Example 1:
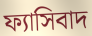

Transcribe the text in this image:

ফ্যাসিবাদ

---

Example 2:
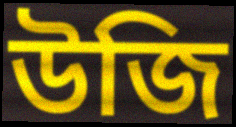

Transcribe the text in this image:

উজি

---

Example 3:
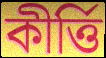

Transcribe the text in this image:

কীৰ্ত্তি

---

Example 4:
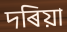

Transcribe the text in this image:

দৰিয়া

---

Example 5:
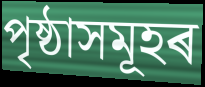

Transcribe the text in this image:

পৃষ্ঠাসমূহৰ